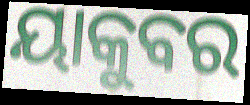
ୟାକୁବର